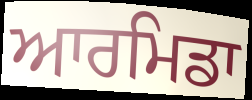
ਆਰਮਿਡਾ